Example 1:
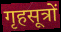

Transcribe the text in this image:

गृहसूत्रों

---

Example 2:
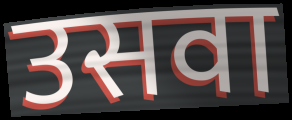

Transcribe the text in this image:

उसवा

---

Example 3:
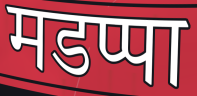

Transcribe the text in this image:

मडप्पा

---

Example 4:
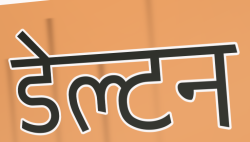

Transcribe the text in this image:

डेल्टन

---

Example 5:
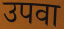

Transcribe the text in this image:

उपवा